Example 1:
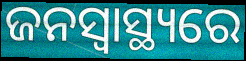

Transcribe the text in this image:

ଜନସ୍ଵାସ୍ଥ୍ୟରେ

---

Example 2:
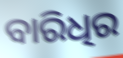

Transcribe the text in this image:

ବାରିଧିର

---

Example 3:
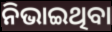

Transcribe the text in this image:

ନିଭାଇଥିବା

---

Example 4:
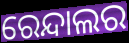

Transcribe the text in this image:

ରେନ୍ଦାଲର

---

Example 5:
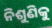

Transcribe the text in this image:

ନିଶୁଣିକୁ